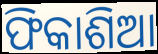
ଫିକାଶିଆ